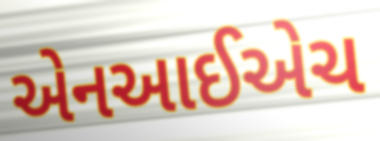
એનઆઈએચ